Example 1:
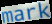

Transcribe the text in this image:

mark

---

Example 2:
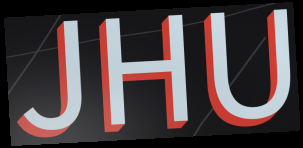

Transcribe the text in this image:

JHU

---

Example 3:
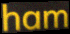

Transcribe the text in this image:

ham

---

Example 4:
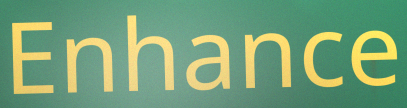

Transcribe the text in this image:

Enhance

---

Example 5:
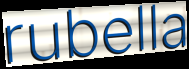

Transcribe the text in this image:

rubella